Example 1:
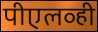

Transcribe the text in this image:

पीएलव्ही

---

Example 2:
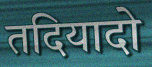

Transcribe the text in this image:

तदियादो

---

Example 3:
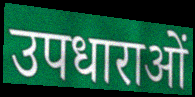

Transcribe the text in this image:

उपधाराओं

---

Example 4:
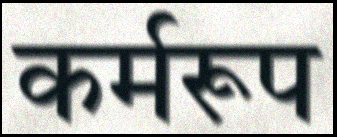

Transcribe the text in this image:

कर्मरूप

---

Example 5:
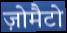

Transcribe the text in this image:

ज़ोमैटो